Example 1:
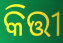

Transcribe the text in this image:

କିତ୍ତୀ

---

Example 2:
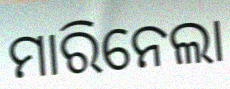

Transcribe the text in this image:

ମାରିନେଲା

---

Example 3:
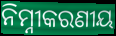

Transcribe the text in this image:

ନିମ୍ନୀକରଣୀୟ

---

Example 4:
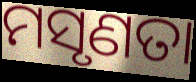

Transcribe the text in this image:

ମସୃଣତା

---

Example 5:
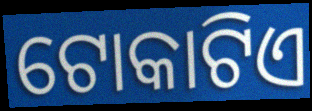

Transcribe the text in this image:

ଟୋକାଟିଏ